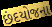
છંદયોજના